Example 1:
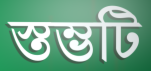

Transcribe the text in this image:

স্তম্ভটি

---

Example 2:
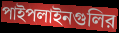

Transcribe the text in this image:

পাইপলাইনগুলির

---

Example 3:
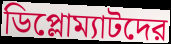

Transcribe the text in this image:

ডিপ্লোম্যাটদের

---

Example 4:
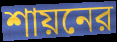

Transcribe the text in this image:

শায়নের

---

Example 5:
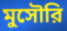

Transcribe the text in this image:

মুসৌরি